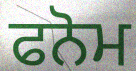
ਫਨੋਮ